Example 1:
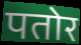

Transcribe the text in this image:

पतोर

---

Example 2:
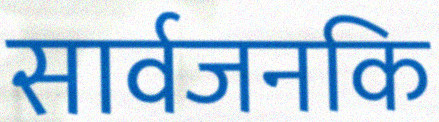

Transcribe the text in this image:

सार्वजनकि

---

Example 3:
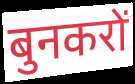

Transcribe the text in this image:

बुनकरों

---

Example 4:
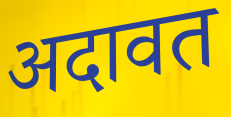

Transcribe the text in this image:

अदावत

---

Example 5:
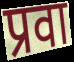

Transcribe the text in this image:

प्रवा